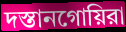
দস্তানগোয়িরা